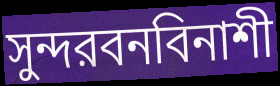
সুন্দরবনবিনাশী